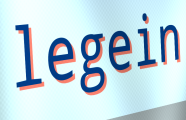
legein